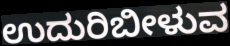
ಉದುರಿಬೀಳುವ